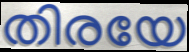
തിരയേ